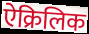
ऐक्रिलिक